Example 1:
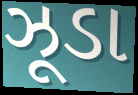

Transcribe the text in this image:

ઝૂડા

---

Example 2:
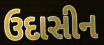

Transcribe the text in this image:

ઉદાસીન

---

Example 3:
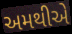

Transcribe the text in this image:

અમથીએ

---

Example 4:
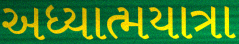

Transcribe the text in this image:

અધ્યાત્મયાત્રા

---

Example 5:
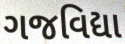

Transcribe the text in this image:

ગજવિદ્યા